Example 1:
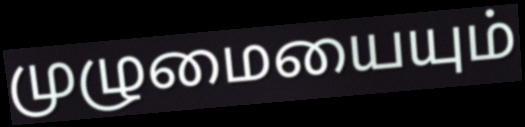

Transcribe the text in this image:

முழுமையையும்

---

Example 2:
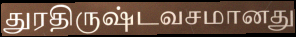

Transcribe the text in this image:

துரதிருஷ்டவசமானது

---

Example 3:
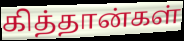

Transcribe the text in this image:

கித்தான்கள்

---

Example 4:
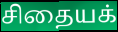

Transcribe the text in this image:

சிதையக்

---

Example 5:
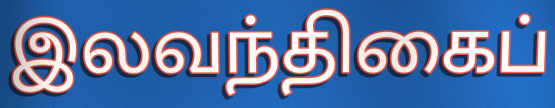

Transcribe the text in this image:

இலவந்திகைப்